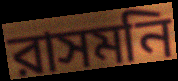
রাসমনি